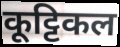
कूट्टिकल